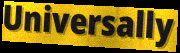
Universally